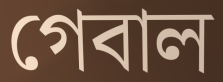
গেবাল